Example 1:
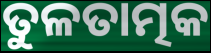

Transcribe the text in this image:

ତୁଳତାତ୍ମକ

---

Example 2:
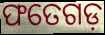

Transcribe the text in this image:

ଫତେଗଡ଼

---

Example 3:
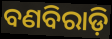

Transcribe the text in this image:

ବଣବିରାଡ଼ି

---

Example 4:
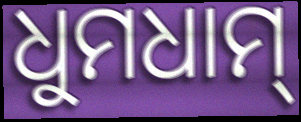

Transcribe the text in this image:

ଧୁମଧାମ୍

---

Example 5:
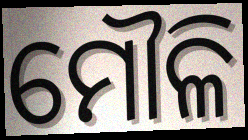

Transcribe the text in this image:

ମୌଳି